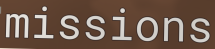
missions